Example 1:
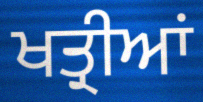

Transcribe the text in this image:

ਖਤ੍ਰੀਆਂ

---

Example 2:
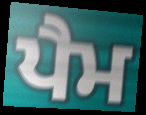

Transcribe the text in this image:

ਪੈਮ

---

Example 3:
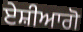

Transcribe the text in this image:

ਏਸ਼ੀਆਗੋ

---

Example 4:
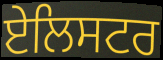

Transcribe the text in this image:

ਏਲਿਸਟਰ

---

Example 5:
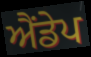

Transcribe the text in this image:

ਐਂਡੇਪ